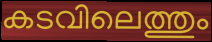
കടവിലെത്തും